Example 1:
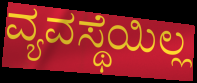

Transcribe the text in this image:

ವ್ಯವಸ್ಥೆಯಿಲ್ಲ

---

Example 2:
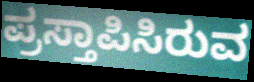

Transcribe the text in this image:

ಪ್ರಸ್ತಾಪಿಸಿರುವ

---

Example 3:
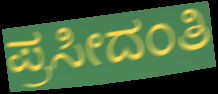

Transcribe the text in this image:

ಪ್ರಸೀದಂತಿ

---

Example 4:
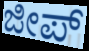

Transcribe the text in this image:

ಜೀಪ್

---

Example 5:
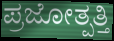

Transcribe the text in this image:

ಪ್ರಜೋತ್ಪತ್ತಿ